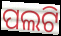
ପଲଟି